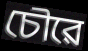
চৌৱে